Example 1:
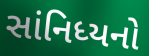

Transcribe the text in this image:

સાંનિધ્યનો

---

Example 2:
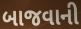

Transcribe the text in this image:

બાજવાની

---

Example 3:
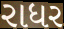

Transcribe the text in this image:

રાધર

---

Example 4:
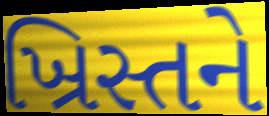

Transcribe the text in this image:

ખ્રિસ્તને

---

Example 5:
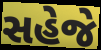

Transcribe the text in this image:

સહેજે